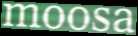
moosa